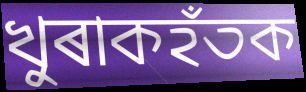
খুৰাকহঁতক